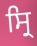
ਸ੍ਰਿ